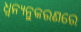
ଧ୍ଵନ୍ୟନୁକରଣରେ